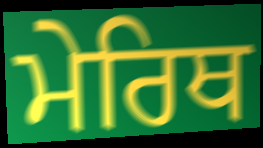
ਮੇਰਿਥ